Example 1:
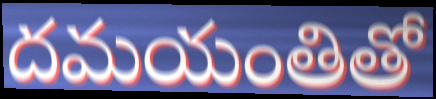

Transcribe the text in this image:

దమయంతితో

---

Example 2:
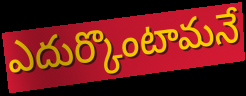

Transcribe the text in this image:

ఎదుర్కొంటామనే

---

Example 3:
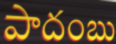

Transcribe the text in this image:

పాదంబు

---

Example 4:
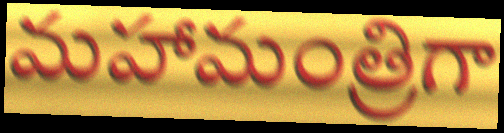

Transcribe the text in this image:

మహామంత్రిగా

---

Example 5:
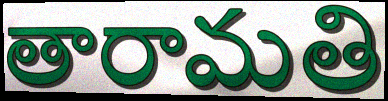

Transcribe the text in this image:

తారామతి